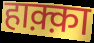
हाक़्क़ा